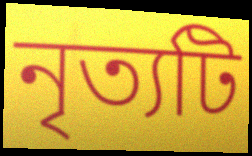
নৃত্যটি